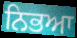
ਨਿਭਆ